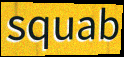
squab